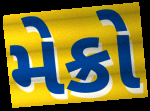
મેક્રો